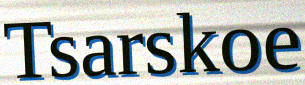
Tsarskoe